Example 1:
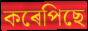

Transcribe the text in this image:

কৰেপিছে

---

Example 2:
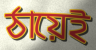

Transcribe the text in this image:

ঠায়েই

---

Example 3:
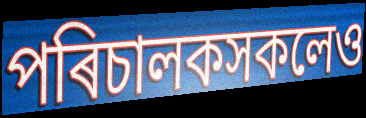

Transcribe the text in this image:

পৰিচালকসকলেও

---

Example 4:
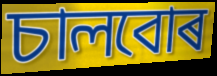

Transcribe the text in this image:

চালবোৰ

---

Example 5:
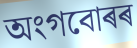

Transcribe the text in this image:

অংগবোৰৰ